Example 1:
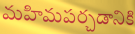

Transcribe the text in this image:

మహిమపర్చడానికి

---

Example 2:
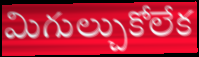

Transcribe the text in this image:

మిగుల్చుకోలేక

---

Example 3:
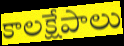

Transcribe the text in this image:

కాలక్షేపాలు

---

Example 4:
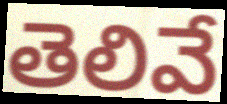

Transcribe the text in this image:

తెలివే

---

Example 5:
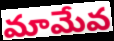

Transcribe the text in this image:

మామేవ